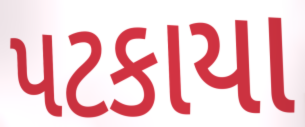
પટકાયા